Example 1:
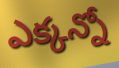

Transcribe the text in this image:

ఎక్కన్నో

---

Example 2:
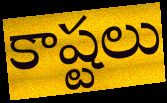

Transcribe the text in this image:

కాష్టలు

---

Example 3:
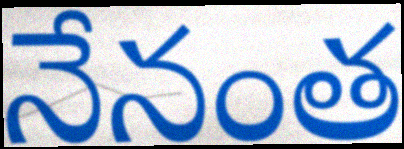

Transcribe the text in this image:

నేనంత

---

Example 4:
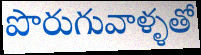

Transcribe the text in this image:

పొరుగువాళ్ళతో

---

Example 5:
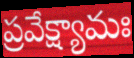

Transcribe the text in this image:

ప్రవేక్ష్యామః